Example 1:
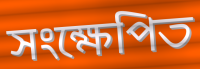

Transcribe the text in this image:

সংক্ষেপিত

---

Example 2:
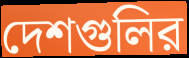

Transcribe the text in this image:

দেশগুলির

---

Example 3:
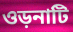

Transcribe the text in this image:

ওড়নাটি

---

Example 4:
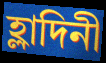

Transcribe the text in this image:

হ্লাদিনী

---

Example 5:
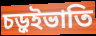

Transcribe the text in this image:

চড়ুইভাতি